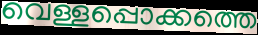
വെള്ളപ്പൊക്കത്തെ